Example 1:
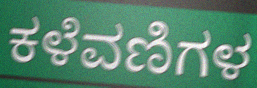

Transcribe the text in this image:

ಕಳೆವಣಿಗಳ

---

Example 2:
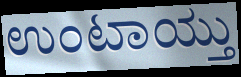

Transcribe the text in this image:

ಉಂಟಾಯ್ತು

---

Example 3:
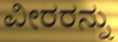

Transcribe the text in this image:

ವೀರರನ್ನು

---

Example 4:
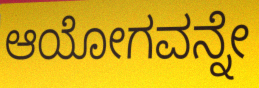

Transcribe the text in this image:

ಆಯೋಗವನ್ನೇ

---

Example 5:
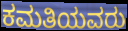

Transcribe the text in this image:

ಕಮತಿಯವರು